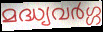
മദ്ധ്യവർഗ്ഗ